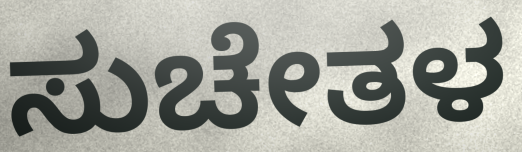
ಸುಚೇತಳ